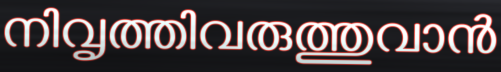
നിവൃത്തിവരുത്തുവാൻ